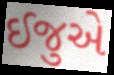
ઈજુએ